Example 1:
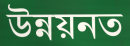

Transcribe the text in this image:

উন্নয়নত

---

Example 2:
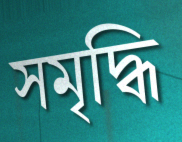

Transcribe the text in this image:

সমৃদ্ধি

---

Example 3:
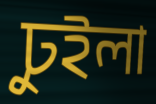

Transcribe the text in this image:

ঢুইলা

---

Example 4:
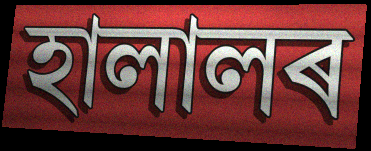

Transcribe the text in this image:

হালালৰ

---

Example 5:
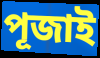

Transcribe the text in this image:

পূজাই